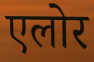
एलोर